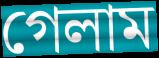
গেলাম